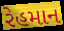
રેહમાન